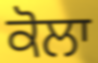
ਕੋਲਾ